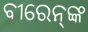
ବୀରେନ୍‍ଙ୍କ